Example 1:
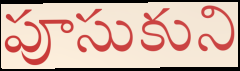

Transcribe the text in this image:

పూసుకుని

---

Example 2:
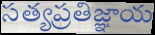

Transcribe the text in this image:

సత్యప్రతిజ్ఞాయ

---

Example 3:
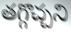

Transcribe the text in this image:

తగ్గొచ్చని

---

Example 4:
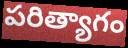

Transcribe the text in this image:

పరిత్యాగం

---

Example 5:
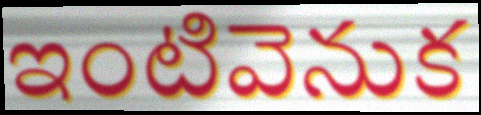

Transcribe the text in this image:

ఇంటివెనుక